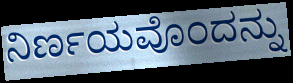
ನಿರ್ಣಯವೊಂದನ್ನು